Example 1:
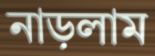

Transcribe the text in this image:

নাড়লাম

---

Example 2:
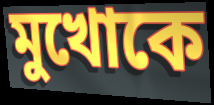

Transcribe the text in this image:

মুখোকে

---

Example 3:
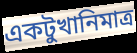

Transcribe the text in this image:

একটুখানিমাত্র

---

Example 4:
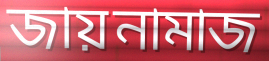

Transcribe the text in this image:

জায়নামাজ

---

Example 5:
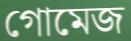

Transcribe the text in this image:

গোমেজ